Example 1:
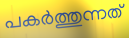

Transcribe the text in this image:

പകർത്തുന്നത്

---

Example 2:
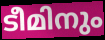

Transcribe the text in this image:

ടീമിനും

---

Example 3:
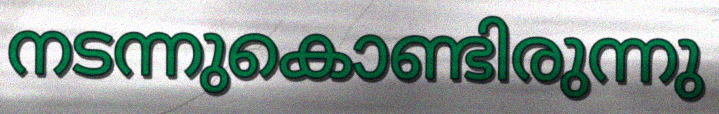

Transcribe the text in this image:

നടന്നുകൊണ്ടിരുന്നു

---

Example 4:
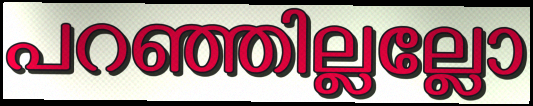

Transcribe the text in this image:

പറഞ്ഞില്ലല്ലോ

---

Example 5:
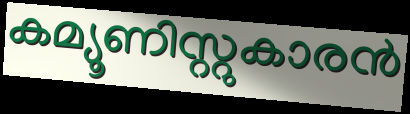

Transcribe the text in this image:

കമ്യൂണിസ്റ്റുകാരൻ